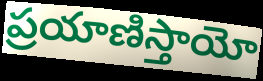
ప్రయాణిస్తాయో